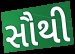
સૌથી